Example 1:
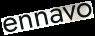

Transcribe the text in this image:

ennavo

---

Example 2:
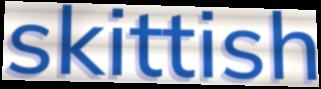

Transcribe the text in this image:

skittish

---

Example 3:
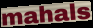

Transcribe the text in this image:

mahals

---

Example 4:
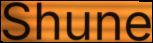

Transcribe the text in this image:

Shune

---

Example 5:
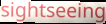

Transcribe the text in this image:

sightseeing